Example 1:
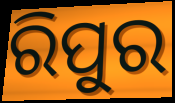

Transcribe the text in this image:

ରିପୁର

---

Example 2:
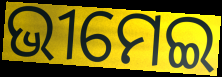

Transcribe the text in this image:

ଭୀମେଇ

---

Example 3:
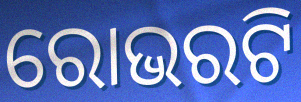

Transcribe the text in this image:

ରୋଭରଟି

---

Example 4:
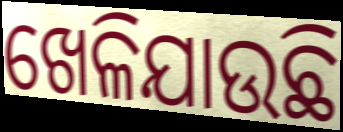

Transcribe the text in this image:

ଖେଳିଯାଉଛି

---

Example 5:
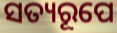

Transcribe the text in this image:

ସତ୍ୟରୂପେ